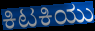
ಕಿಟಕಿಯು